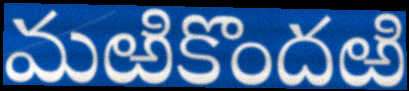
మఱికొందఱి